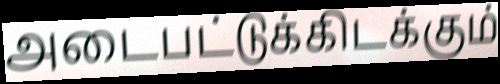
அடைபட்டுக்கிடக்கும்